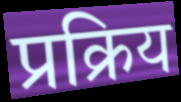
प्रक्रिय